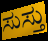
ಸುಸ್ತು